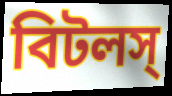
বিটলস্